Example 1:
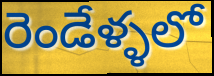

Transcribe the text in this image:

రెండేళ్ళలో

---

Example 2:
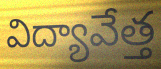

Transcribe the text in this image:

విద్యావేత్త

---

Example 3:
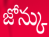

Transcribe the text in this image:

జోన్కు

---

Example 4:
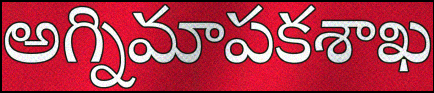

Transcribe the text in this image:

అగ్నిమాపకశాఖ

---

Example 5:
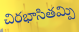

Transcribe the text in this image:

చిరభాసితమ్పి